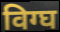
विग्घ